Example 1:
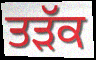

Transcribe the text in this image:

ਤੜੱਕ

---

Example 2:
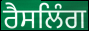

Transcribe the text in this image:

ਰੈਸਲਿੰਗ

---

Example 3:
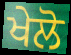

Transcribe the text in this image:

ਖੇਲੋ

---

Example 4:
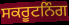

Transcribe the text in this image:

ਸਕਰੂਟਨਿੰਗ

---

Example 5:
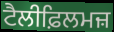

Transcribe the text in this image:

ਟੈਲੀਫ਼ਿਲਮਜ਼